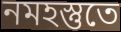
নমহস্তুতে